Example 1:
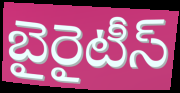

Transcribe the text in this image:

బైరైటీస్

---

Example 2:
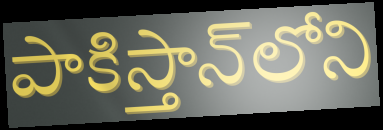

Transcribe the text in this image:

పాకిస్తాన్‌లోని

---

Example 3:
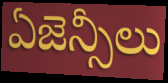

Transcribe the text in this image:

ఏజెన్సీలు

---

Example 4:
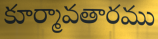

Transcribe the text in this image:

కూర్మావతారము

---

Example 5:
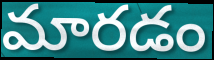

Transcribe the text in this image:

మారడం